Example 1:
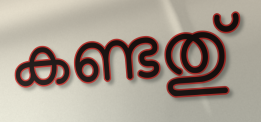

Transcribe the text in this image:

കണ്ടതു്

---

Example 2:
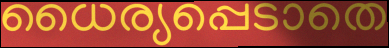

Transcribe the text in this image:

ധൈര്യപ്പെടാതെ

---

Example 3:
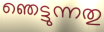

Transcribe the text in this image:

ഞെട്ടുന്നതു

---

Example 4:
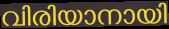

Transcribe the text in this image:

വിരിയാനായി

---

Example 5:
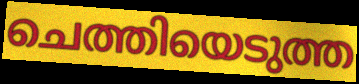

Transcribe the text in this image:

ചെത്തിയെടുത്ത